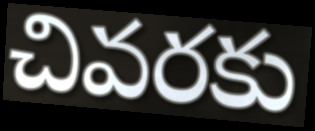
చివరకు